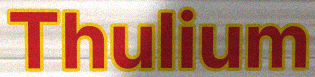
Thulium